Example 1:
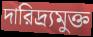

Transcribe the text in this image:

দারিদ্র্যমুক্ত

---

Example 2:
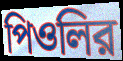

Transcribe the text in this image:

পিওলির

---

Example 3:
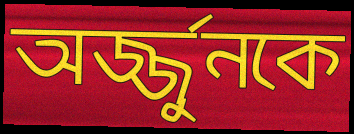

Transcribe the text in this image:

অর্জ্জুনকে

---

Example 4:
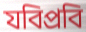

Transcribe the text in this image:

যবিপ্রবি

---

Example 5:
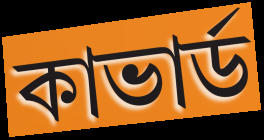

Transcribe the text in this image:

কাভার্ড